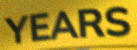
YEARS